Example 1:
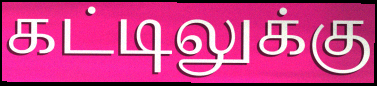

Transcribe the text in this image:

கட்டிலுக்கு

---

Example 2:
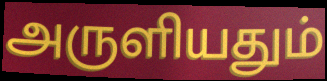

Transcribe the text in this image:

அருளியதும்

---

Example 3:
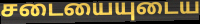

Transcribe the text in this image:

சடையையுடைய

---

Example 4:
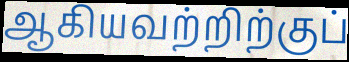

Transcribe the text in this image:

ஆகியவற்றிற்குப்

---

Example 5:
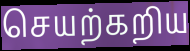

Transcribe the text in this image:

செயற்கறிய